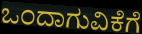
ಒಂದಾಗುವಿಕೆಗೆ